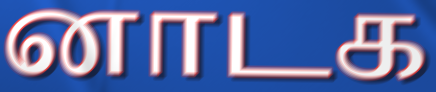
னாடக